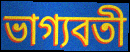
ভাগ্যবতী